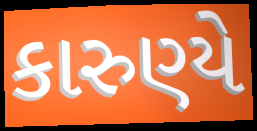
કારુણ્યે